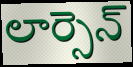
లార్సెన్